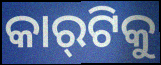
କାର୍‌ଟିକୁ